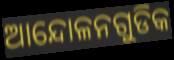
ଆନ୍ଦୋଳନଗୁଡିକ